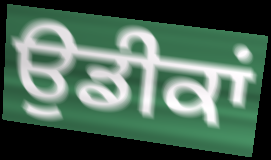
ਉਡੀਕਾਂ